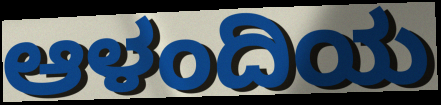
ಆಳಂದಿಯ